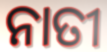
ନାତୀ